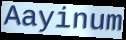
Aayinum